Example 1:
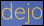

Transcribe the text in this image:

dejo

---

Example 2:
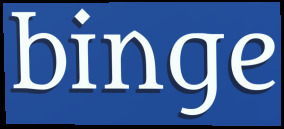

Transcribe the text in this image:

binge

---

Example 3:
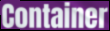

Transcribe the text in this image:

Container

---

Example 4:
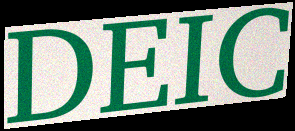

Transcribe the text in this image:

DEIC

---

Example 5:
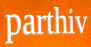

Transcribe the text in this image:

parthiv